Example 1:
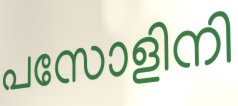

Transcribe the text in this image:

പസോളിനി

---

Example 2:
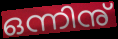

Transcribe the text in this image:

ഒന്നിനു്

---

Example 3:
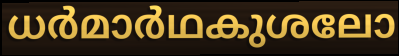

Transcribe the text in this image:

ധർമാർഥകുശലോ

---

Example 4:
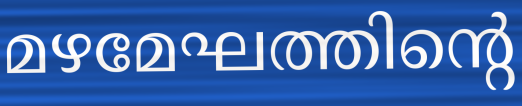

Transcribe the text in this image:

മഴമേഘത്തിന്റെ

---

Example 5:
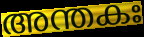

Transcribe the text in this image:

അന്തകഃ